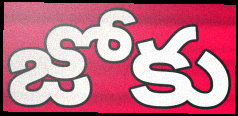
జోకు